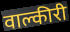
वाल्कीरी